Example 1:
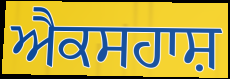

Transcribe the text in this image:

ਐਕਸਹਾਸ਼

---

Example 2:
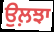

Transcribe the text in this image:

ਉਲ਼ਝਾ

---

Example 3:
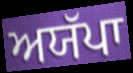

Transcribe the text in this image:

ਅਯੱਪਾ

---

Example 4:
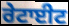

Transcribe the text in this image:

ਰੇਟਾਈਟ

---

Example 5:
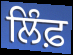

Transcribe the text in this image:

ਲਿੰਫ਼